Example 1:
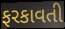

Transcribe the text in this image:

ફરકાવતી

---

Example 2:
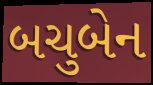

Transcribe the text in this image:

બચુબેન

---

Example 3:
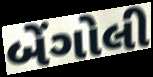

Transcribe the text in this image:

બેંગોલી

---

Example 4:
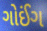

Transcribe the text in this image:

ગોઈંગ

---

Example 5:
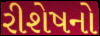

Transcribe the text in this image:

રીશેષનો